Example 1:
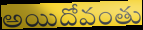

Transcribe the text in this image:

అయిదోవంతు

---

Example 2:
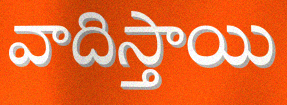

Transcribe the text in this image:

వాదిస్తాయి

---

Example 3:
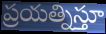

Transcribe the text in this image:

ప్రయత్నిస్తూ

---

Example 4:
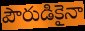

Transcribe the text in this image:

పౌరుడికైనా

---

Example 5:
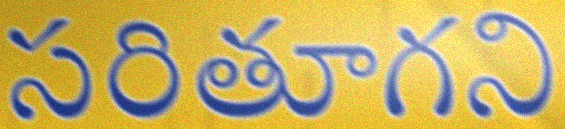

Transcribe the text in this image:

సరితూగని